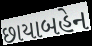
છાયાબહેન